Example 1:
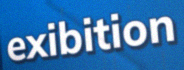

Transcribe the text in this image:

exibition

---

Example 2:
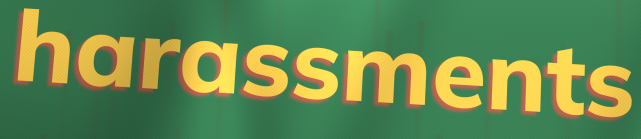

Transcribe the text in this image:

harassments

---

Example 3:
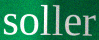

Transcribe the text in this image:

soller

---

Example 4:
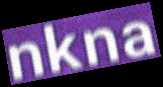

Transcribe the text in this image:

nkna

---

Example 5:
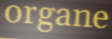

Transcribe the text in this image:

organe